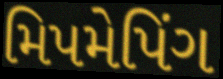
મિપમેપિંગ